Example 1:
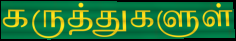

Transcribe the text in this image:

கருத்துகளுள்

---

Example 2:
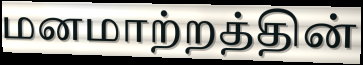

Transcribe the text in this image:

மனமாற்றத்தின்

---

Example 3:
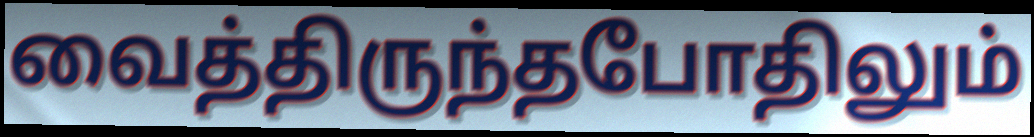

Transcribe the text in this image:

வைத்திருந்தபோதிலும்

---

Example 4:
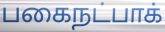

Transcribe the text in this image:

பகைநட்பாக்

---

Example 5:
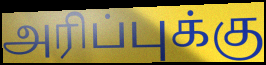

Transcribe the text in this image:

அரிப்புக்கு